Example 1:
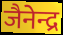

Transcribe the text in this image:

जैनेन्‍द्र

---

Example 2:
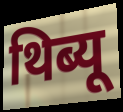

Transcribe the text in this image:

थिब्यू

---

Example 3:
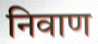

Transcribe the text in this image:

निवाण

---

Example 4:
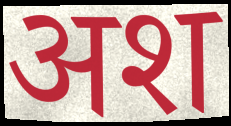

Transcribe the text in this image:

अश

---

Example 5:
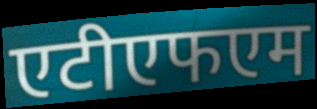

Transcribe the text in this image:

एटीएफएम